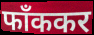
फाँककर